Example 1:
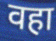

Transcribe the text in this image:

वहा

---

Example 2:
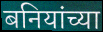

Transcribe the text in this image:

बनियांच्या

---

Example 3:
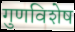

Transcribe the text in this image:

गुणविशेष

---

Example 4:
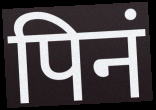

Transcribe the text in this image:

पिनं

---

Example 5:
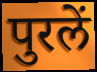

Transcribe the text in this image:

पुरलें